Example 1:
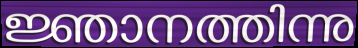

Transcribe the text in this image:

ജ്ഞാനത്തിന്നു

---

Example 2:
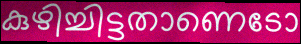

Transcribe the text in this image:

കുഴിച്ചിട്ടതാണെടോ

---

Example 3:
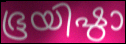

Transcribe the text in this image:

ഭൂയിഷ്ഠാ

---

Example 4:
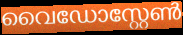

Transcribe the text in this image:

വൈഡോസ്റ്റേൺ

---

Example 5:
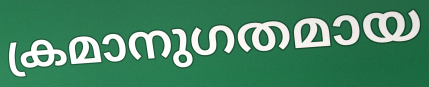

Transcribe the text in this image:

ക്രമാനുഗതമായ